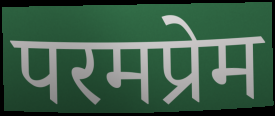
परमप्रेम